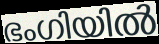
ഭംഗിയിൽ